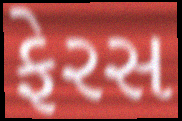
ફેરસ